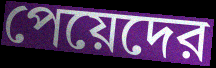
পেয়েদের